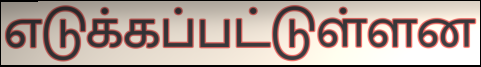
எடுக்கப்பட்டுள்ளன